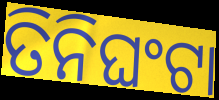
ତିନିଘଂଟା